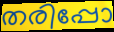
തരിപ്പോ